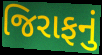
જિરાફનું